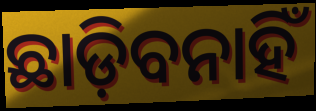
ଛାଡ଼ିବନାହିଁ